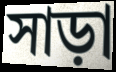
সাড়া